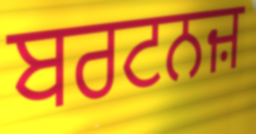
ਬਰਟਨਜ਼